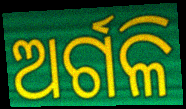
ଅର୍ଗଳି